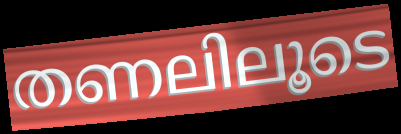
തണലിലൂടെ